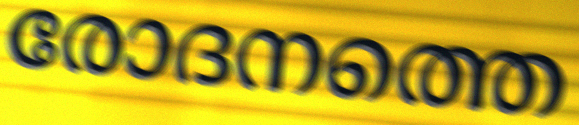
രോദനത്തെ